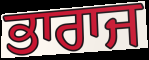
ਭਾਰਾਜ